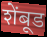
शेंबूड